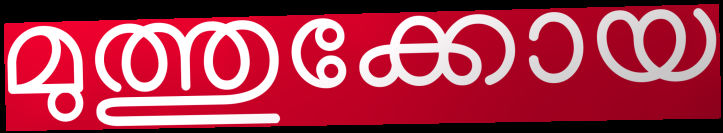
മുത്തുക്കോയ